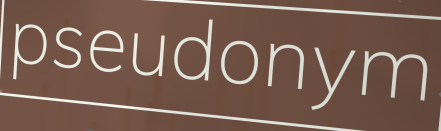
pseudonym